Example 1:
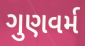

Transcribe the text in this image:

ગુણવર્મ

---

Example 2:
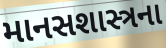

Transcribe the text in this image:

માનસશાસ્ત્રના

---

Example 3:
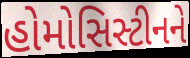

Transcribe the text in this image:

હોમોસિસ્ટીનને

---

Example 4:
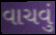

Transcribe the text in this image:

વાચવું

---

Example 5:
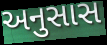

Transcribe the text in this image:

અનુસાસ